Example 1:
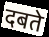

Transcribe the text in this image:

दबते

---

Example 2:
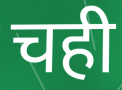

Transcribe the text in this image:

चही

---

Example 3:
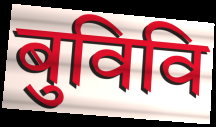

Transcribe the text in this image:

बुविवि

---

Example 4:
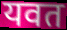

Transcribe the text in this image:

यवत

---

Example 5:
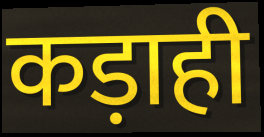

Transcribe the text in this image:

कड़ाही